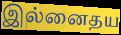
இல்னைதய